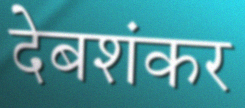
देबशंकर